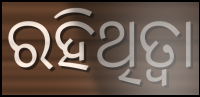
ରହିଥିତ୍ବା